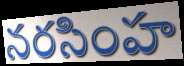
నరసింహ